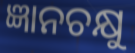
ଜ୍ଞାନଚକ୍ଷୁ